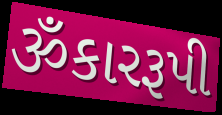
ૐકારરૂપી